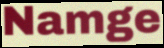
Namge